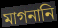
মাগনানি